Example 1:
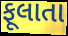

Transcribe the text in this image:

ફૂલાતા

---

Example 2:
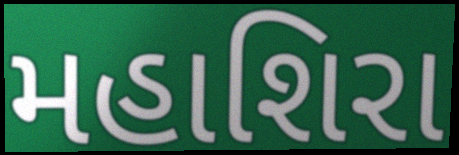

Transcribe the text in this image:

મહાશિરા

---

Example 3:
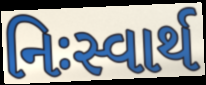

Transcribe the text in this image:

નિઃસ્વાર્થ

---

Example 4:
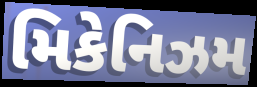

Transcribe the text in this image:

મિકેનિઝમ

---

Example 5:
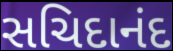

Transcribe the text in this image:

સચિદાનંદ